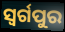
ସ୍ଵର୍ଗପୁର